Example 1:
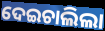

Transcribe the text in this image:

ଦେଇଚାଲିଲା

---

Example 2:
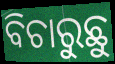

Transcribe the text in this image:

ବିଚାରୁଛୁ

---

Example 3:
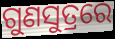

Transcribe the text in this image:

ଗୁଣସୁତ୍ରରେ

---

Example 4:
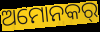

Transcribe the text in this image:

ଅମୋନକର୍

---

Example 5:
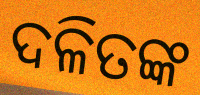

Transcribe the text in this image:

ଦଳିତଙ୍କ